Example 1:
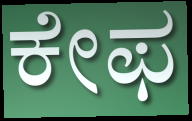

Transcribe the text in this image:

ಕೇಫ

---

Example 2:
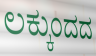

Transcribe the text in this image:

ಲಕ್ಕುಂದದ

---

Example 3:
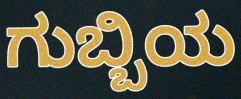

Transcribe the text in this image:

ಗುಬ್ಬಿಯ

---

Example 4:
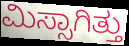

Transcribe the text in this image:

ಮಿಸ್ಸಾಗಿತ್ತು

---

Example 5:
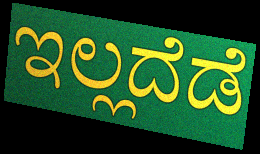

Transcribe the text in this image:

ಇಲ್ಲದೆಡೆ